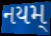
નયમ્